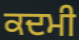
ਕਦਮੀ